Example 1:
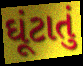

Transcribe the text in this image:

ઘૂંટાતું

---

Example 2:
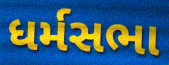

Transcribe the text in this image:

ધર્મસભા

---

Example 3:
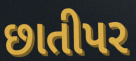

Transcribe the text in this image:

છાતીપર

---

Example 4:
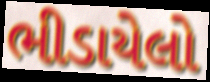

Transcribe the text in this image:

ભીડાયેલો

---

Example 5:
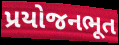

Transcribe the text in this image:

પ્રયોજનભૂત